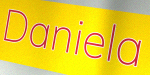
Daniela